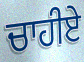
ਚਾਹੀਏ